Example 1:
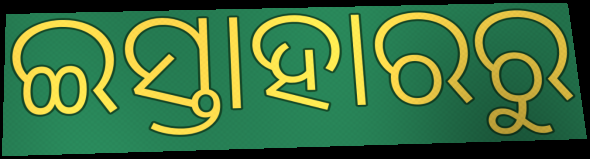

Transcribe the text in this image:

ଇସ୍ତାହାରରୁ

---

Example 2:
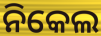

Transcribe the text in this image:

ନିକେଲ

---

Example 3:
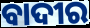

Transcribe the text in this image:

ବାଦୀର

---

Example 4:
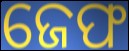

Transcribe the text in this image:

ଜେଫ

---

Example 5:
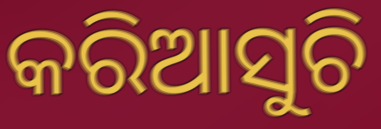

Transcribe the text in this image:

କରିଆସୁଚି